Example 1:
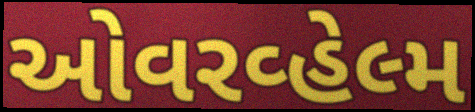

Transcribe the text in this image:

ઓવરવ્હેલ્મ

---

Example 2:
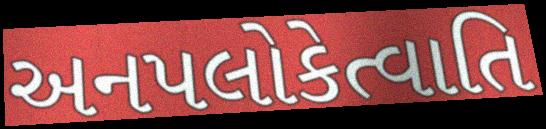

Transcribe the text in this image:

અનપલોકેત્વાતિ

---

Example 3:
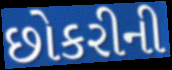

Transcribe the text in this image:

છોકરીની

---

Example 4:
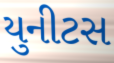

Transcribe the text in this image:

યુનીટસ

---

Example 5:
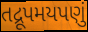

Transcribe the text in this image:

તદ્રૂપમયપણું